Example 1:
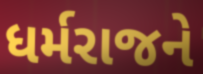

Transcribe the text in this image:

ધર્મરાજને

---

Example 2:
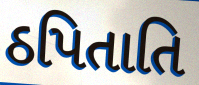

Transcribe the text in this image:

ઠપિતાતિ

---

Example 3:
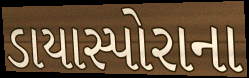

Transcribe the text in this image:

ડાયાસ્પોરાના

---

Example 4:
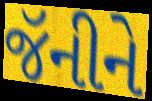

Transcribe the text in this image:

જૅનીને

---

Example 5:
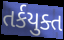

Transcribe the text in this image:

તર્કયુક્ત